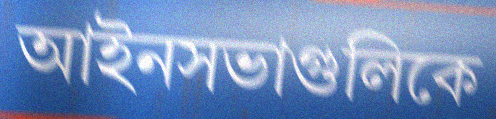
আইনসভাগুলিকে